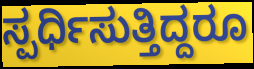
ಸ್ಪರ್ಧಿಸುತ್ತಿದ್ದರೂ